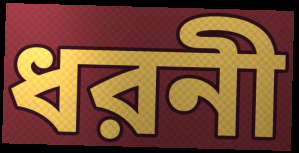
ধরনী